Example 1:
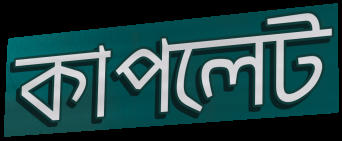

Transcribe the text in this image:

কাপলেট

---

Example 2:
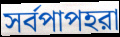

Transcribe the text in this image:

সর্বপাপহরা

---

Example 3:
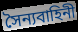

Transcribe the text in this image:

সৈন্যবাহিনী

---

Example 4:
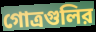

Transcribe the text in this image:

গোত্রগুলির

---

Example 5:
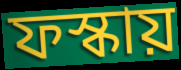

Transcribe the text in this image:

ফস্কায়